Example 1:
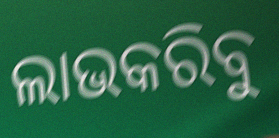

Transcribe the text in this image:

ଲାଭକରିବୁ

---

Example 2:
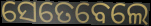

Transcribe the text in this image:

ସେତେବେଲେ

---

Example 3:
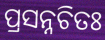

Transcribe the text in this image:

ପ୍ରସନ୍ନଚିତଃ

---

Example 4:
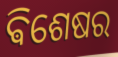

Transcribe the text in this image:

ଵିଶେଷର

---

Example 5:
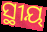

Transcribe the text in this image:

ସ୍ଥୀୟ